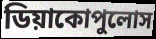
ডিয়াকোপুলোস